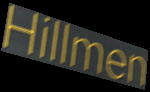
Hillmen